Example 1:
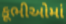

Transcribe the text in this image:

કૂભીઓમાં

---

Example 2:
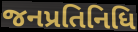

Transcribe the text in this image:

જનપ્રતિનિધિ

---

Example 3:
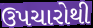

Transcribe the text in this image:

ઉપચારોથી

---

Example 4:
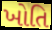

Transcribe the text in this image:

ખોતિ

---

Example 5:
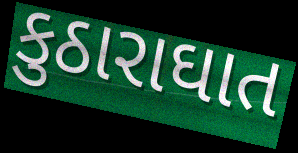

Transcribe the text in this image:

કુઠારાઘાત